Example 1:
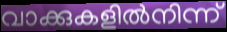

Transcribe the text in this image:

വാക്കുകളിൽനിന്ന്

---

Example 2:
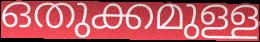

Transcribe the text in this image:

ഒതുക്കമുള്ള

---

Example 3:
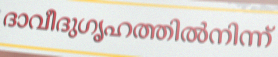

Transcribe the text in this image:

ദാവീദുഗൃഹത്തിൽനിന്ന്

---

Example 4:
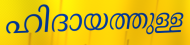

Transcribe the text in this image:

ഹിദായത്തുള്ള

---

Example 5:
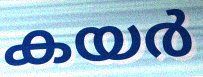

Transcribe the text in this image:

കയർ